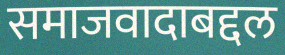
समाजवादाबद्दल